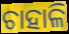
ଚାହାଳି